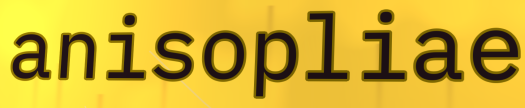
anisopliae